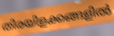
തിരയിളക്കങ്ങളിൽ